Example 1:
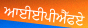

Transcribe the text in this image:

ਆਈਈਪੀਐੱਫਏ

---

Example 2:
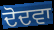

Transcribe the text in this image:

ਦੋਦਵਾ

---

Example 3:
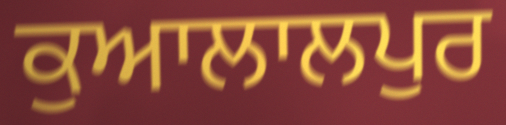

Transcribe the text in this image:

ਕੁਆਲਾਲਪੁਰ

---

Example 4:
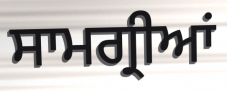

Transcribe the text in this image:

ਸਾਮਗ੍ਰੀਆਂ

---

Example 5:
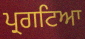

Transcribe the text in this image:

ਪ੍ਰਗਟਿਆ